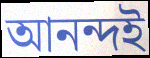
আনন্দই